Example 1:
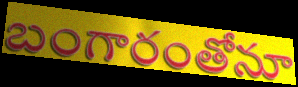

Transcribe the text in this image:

బంగారంతోనూ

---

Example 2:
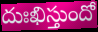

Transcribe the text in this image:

దుఃఖిస్తుందో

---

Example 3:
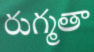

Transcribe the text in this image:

రుగ్మతా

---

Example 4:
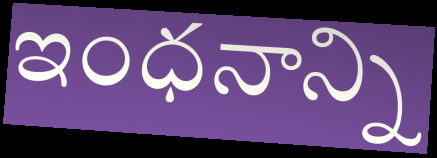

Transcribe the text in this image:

ఇంధనాన్ని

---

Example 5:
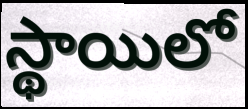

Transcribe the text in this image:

స్థాయిలో